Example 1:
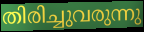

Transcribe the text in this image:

തിരിച്ചുവരുന്നു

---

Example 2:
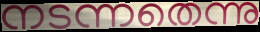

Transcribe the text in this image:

നടന്നതെന്നു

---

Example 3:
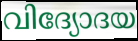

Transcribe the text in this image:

വിദ്യോദയ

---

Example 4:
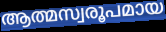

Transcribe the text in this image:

ആത്മസ്വരൂപമായ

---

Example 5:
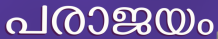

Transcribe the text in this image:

പരാജയം